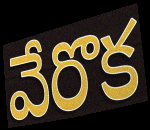
వేరొక